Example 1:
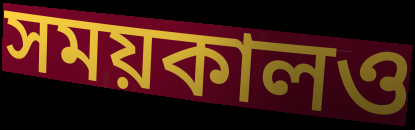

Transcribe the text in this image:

সময়কালও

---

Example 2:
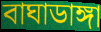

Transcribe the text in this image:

বাঘাডাঙ্গা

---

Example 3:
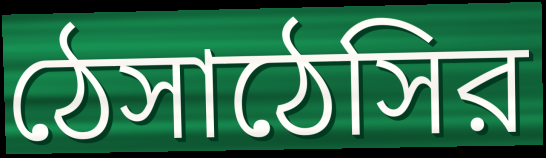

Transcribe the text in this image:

ঠেসাঠেসির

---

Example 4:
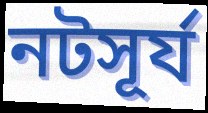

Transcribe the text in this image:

নটসূর্য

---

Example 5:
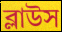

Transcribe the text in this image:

ব্লাউস